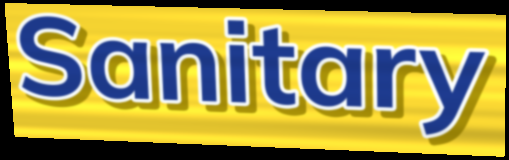
Sanitary